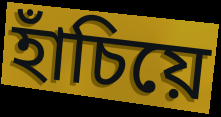
হাঁচিয়ে